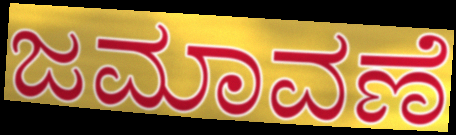
ಜಮಾವಣೆ